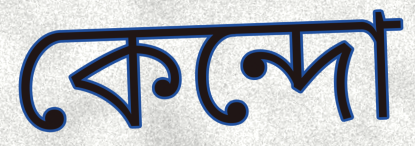
কেন্দো